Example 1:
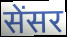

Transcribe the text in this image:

सेंसर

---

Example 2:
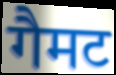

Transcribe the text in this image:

गैमट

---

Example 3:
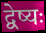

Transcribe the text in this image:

द्वेष्यः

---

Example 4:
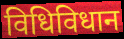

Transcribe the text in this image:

विधिविधान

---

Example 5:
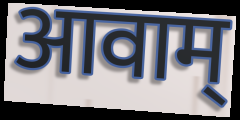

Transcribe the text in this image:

आवाम्